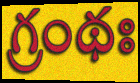
గ్రంథః